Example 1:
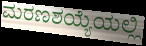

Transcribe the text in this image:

ಮರಣಶಯ್ಯೆಯಲ್ಲಿ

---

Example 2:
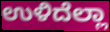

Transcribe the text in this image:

ಉಳಿದೆಲ್ಲಾ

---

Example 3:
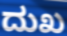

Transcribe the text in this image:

ದುಖ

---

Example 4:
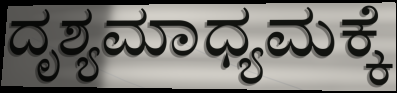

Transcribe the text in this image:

ದೃಶ್ಯಮಾಧ್ಯಮಕ್ಕೆ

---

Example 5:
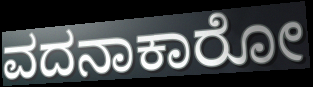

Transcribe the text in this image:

ವದನಾಕಾರೋ